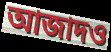
আজাদও